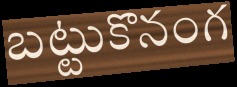
బట్టుకొనంగ